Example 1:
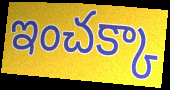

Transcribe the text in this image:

ఇంచక్కా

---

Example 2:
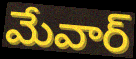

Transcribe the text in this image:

మేవార్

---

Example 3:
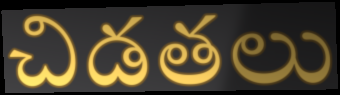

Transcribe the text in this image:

చిడతలు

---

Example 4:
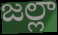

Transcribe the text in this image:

జల్లా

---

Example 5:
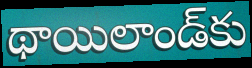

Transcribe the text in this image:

థాయిలాండ్‌కు